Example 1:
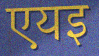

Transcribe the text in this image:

एयइ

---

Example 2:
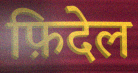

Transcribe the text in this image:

फ़िदेल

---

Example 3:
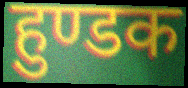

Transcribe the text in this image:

हुण्डक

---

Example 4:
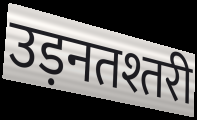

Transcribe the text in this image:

उड़नतश्तरी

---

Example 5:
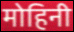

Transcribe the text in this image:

मोहिनी